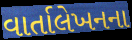
વાર્તાલેખનના